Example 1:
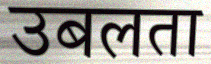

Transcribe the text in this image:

उबलता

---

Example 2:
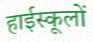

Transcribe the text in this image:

हाईस्कूलों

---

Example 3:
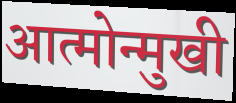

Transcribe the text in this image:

आत्मोन्मुखी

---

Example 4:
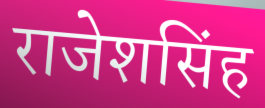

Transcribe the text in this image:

राजेशसिंह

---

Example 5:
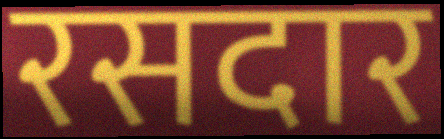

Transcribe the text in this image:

रसदार